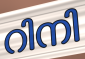
റിനി